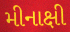
મીનાક્ષી